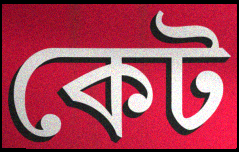
কেট